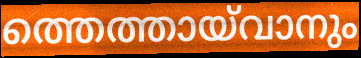
ത്തെത്തായ്‌വാനും